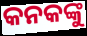
କନକଙ୍କୁ